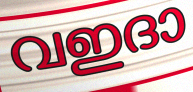
വഇദാ